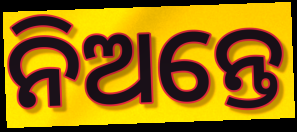
ନିଅନ୍ତେ